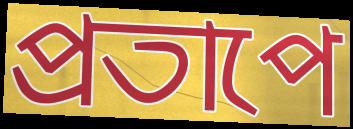
প্রতাপে